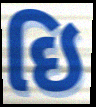
ઇિ